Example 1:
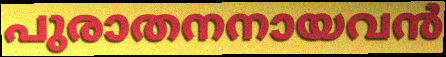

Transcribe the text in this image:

പുരാതനനായവൻ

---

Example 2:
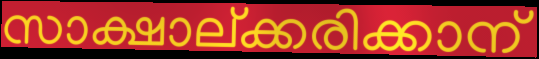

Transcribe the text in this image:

സാക്ഷാല്ക്കരിക്കാന്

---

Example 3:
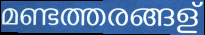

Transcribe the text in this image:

മണ്ടത്തരങ്ങള്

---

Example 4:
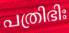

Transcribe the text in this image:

പത്രിഭിഃ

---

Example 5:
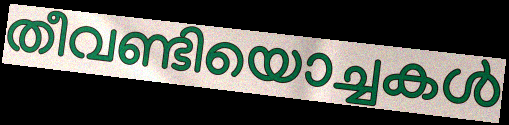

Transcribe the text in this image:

തീവണ്ടിയൊച്ചകൾ